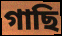
গাছি